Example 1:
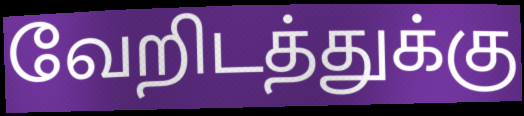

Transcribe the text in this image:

வேறிடத்துக்கு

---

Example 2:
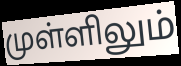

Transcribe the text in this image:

முள்ளிலும்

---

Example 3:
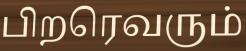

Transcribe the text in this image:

பிறரெவரும்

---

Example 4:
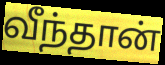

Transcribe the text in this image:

வீந்தான்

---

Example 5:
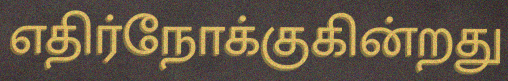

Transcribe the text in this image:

எதிர்நோக்குகின்றது